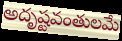
అదృష్టవంతులమే